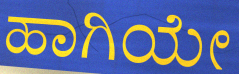
ಹಾಗಿಯೇ